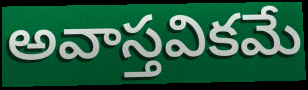
అవాస్తవికమే